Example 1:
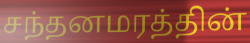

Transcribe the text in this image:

சந்தனமரத்தின்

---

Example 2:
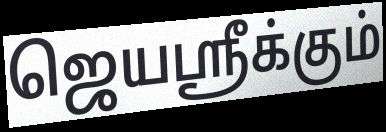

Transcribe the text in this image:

ஜெயஸ்ரீக்கும்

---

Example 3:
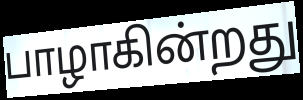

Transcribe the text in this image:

பாழாகின்றது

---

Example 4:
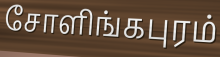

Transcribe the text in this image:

சோளிங்கபுரம்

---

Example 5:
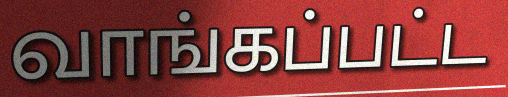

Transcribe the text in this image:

வாங்கப்பட்ட